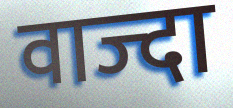
वाज्दा